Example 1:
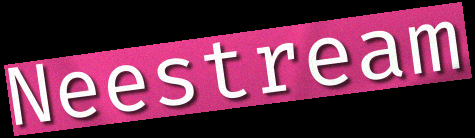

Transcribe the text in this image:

Neestream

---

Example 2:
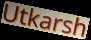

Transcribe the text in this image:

Utkarsh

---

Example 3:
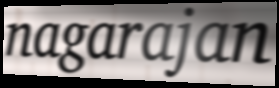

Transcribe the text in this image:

nagarajan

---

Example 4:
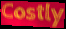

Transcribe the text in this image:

Costly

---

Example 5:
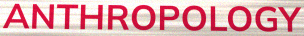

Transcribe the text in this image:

ANTHROPOLOGY